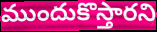
ముందుకొస్తారని